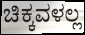
ಚಿಕ್ಕವಳಲ್ಲ